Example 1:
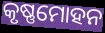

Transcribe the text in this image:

କୃଷ୍ଣମୋହନ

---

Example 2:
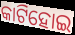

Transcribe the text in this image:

କାଟିହୋଇ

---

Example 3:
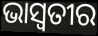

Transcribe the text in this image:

ଭାସ୍ୱତୀର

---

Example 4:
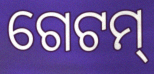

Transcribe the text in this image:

ଗେଟମ୍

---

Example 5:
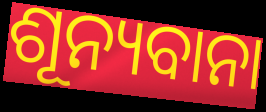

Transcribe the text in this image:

ଶୂନ୍ୟବାନା